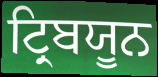
ਟ੍ਰਿਬਯੂਨ